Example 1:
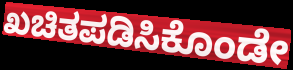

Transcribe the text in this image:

ಖಚಿತಪಡಿಸಿಕೊಂಡೇ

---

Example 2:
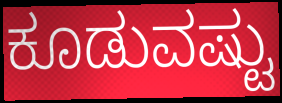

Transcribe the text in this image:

ಕೂಡುವಷ್ಟು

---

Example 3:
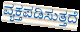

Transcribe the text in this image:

ವ್ಯಕ್ತಪಡಿಸುತ್ತದೆ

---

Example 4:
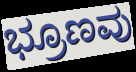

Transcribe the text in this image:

ಭ್ರೂಣವು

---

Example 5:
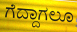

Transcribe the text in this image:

ಗೆದ್ದಾಗಲೂ